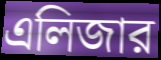
এলিজার